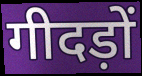
गीदड़ों